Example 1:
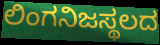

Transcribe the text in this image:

ಲಿಂಗನಿಜಸ್ಥಲದ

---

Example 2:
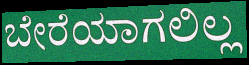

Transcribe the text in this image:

ಬೇರೆಯಾಗಲಿಲ್ಲ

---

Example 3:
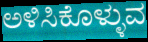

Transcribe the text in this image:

ಅಳಿಸಿಕೊಳ್ಳುವ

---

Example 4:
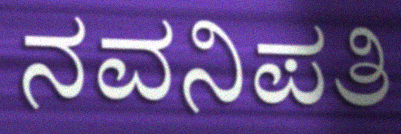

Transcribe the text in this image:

ನವನಿಪತಿ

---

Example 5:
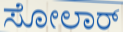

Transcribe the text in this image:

ಸೋಲಾರ್